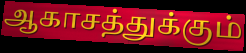
ஆகாசத்துக்கும்